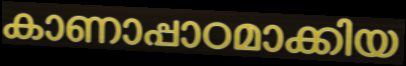
കാണാപ്പാഠമാക്കിയ